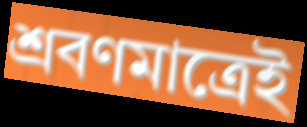
শ্রবণমাত্রেই